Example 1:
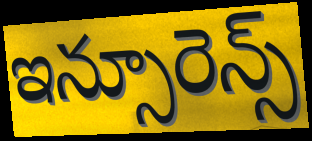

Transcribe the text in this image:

ఇన్సూరెన్స్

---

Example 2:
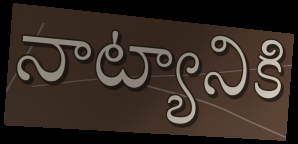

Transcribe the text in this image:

నాట్యానికి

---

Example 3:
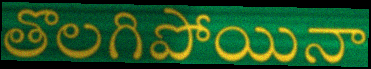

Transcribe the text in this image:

తొలగిపోయినా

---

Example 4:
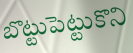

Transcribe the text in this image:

బొట్టుపెట్టుకొని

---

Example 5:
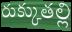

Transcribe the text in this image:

రుక్కుతల్లి